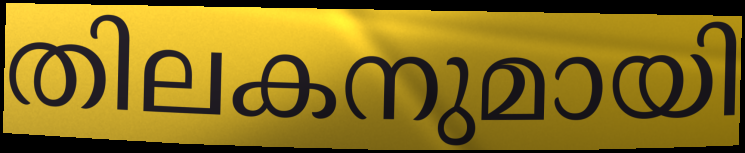
തിലകനുമായി